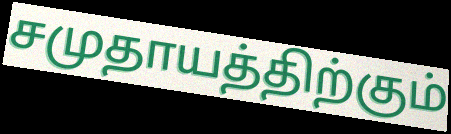
சமுதாயத்திற்கும்